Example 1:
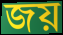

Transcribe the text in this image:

জয়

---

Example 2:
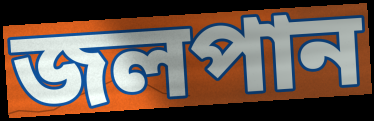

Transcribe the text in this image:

জলপান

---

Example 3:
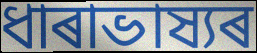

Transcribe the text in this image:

ধাৰাভাষ্যৰ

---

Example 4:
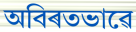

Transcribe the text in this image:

অবিৰতভাৱে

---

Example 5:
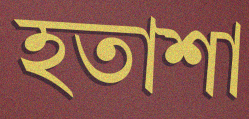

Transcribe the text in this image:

হতাশা